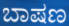
ಬಾಷಣ